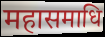
महासमाधि